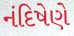
નંદિષેણે